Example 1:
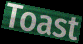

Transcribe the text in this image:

Toast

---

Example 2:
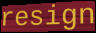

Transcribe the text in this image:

resign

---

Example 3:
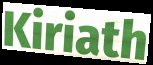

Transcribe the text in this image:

Kiriath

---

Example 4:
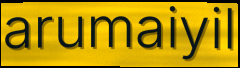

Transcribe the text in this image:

arumaiyil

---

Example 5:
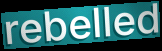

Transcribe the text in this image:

rebelled